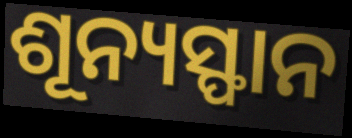
ଶୂନ୍ୟସ୍ଫାନ